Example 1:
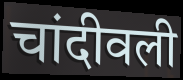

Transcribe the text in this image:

चांदीवली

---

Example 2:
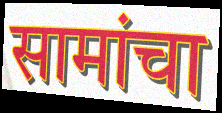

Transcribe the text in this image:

सामांचा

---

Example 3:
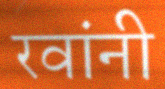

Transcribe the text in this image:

रवांनी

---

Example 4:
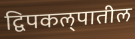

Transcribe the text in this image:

द्विपकल्पातील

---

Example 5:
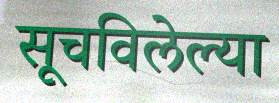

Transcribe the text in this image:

सूचविलेल्या